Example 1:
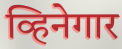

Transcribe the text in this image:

व्हिनेगार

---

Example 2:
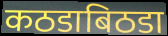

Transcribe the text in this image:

कठडाबिठडा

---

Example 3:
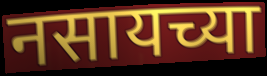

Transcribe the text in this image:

नसायच्या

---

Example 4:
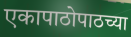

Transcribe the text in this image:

एकापाठोपाठच्या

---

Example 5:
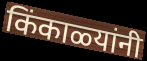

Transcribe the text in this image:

किंकाळ्यांनी